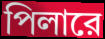
পিলারে